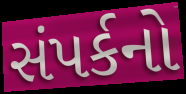
સંપર્કનો